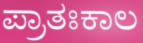
ಪ್ರಾತಃಕಾಲ